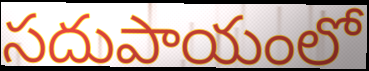
సదుపాయంలో